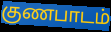
குணபாடம்